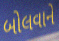
બોલવાને